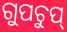
ଗୁପଚୁପ୍